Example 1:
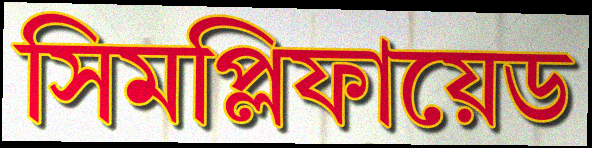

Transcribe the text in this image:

সিমপ্লিফায়েড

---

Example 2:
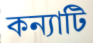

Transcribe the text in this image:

কন্যাটি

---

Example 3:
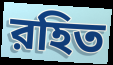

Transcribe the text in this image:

রহিত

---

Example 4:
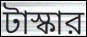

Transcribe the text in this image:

টাস্কার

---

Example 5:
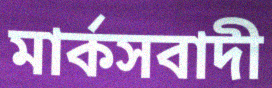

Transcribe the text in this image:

মার্কসবাদী